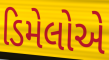
ડિમેલોએ